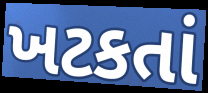
ખટકતાં